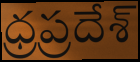
ధ్రప్రదేశ్